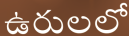
ఉరులలో